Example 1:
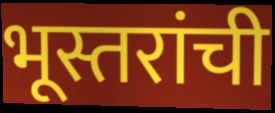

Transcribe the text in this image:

भूस्तरांची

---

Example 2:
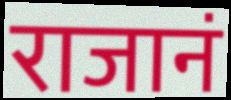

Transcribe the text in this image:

राजानं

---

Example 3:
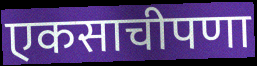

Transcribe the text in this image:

एकसाचीपणा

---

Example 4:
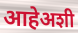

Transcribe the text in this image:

आहेअशी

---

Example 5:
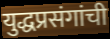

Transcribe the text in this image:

युद्धप्रसंगांची